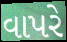
વાપરે